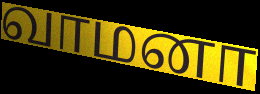
வாமனா